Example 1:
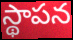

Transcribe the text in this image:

స్థాపన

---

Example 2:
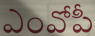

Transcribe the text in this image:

ఎంవోపీ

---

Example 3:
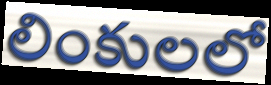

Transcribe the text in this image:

లింకులలో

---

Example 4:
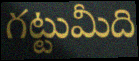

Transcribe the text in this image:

గట్టుమీది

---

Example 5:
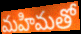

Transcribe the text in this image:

మహిమతో